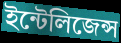
ইন্টেলিজেন্স